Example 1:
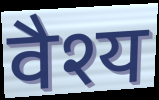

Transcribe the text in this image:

वैश्य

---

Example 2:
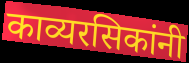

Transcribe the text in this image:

काव्यरसिकांनी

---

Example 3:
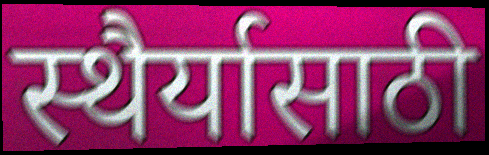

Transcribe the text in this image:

स्थैर्यासाठी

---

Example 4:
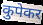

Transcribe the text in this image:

कुपेकर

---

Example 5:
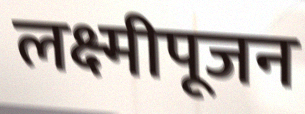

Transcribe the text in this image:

लक्ष्मीपूजन